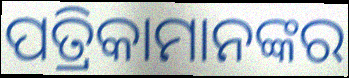
ପତ୍ରିକାମାନଙ୍କର